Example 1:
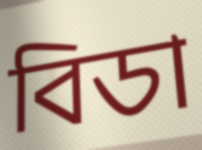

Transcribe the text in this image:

বিডা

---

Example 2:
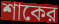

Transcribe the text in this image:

শাকের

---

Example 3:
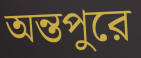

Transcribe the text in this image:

অন্তপুরে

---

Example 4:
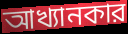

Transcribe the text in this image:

আখ্যানকার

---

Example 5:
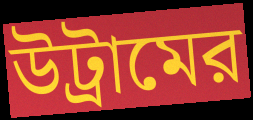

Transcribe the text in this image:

উট্রামের